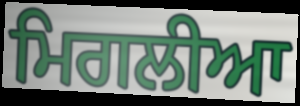
ਮਿਗਲੀਆ